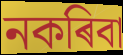
নকৰিবা